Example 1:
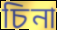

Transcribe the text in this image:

চিনা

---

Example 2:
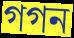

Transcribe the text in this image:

গগন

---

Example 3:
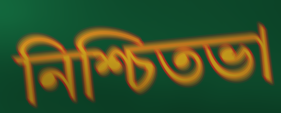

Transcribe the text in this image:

নিশ্চিতভা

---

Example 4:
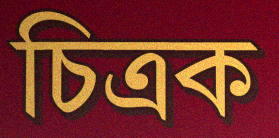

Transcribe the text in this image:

চিত্ৰক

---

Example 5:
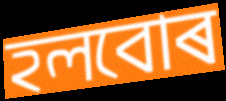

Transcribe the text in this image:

হলবোৰ